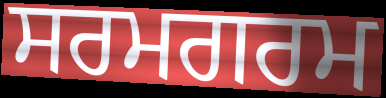
ਸਰਮਗਰਮ